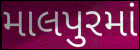
માલપુરમાં